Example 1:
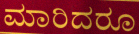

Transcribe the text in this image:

ಮಾರಿದರೂ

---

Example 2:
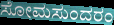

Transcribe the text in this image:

ಸೋಮಸುಂದರಂ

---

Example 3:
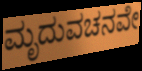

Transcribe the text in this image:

ಮೃದುವಚನವೇ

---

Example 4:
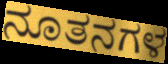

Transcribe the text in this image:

ನೂತನಗಳ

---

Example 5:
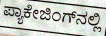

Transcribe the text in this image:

ಪ್ಯಾಕೇಜಿಂಗ್‌ನಲ್ಲಿ